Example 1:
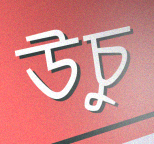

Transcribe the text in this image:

উচু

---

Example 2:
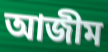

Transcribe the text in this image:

আজীম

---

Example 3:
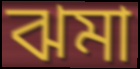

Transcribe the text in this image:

ঝমা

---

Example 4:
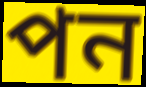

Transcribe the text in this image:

পন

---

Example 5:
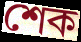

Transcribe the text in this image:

শেক